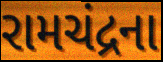
રામચંદ્રના